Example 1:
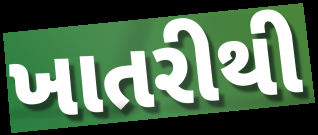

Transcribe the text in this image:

ખાતરીથી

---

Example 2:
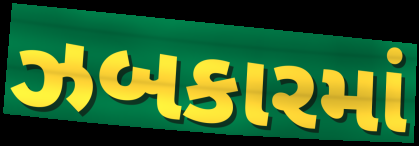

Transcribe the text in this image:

ઝબકારમાં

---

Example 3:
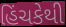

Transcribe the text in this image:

હિંચકેથી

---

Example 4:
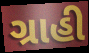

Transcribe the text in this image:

ગ્રાહી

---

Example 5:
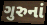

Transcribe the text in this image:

ગુરુનાં